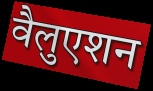
वैलुएशन